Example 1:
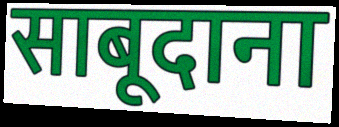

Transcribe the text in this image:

साबूदाना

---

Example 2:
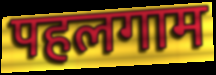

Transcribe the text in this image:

पहलगाम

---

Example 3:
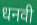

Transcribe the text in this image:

धनवी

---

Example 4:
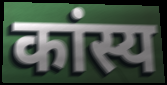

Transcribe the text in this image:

कांस्य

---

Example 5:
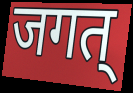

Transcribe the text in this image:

जगत्